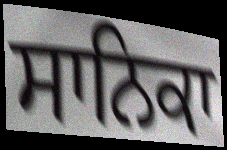
ਸਾਨਿਕਾ